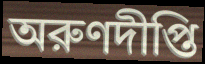
অরুণদীপ্তি